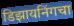
डिझायनिंगचा